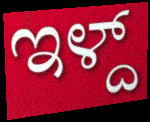
ಇಳ್ದ್